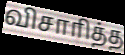
விசாரித்த